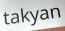
takyan